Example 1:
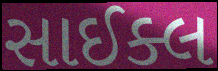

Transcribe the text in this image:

સાઈક્લ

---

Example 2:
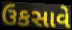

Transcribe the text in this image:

ઉકસાવે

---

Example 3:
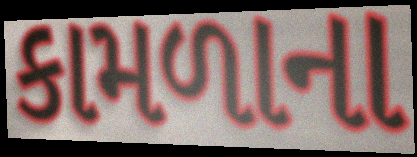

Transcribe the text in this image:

કામળાના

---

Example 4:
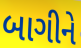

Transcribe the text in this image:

બાગીને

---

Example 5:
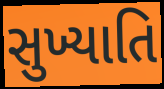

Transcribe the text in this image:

સુખ્યાતિ